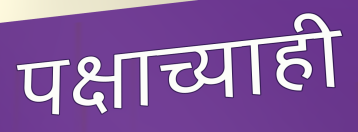
पक्षाच्याही